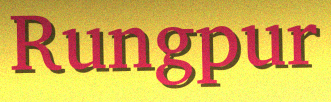
Rungpur